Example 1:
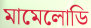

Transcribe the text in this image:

মামেলোডি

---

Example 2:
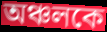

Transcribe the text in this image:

অঞ্চলকে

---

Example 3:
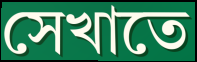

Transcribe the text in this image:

সেখাতে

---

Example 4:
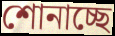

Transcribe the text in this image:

শোনাচ্ছে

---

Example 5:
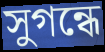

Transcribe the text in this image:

সুগন্ধে